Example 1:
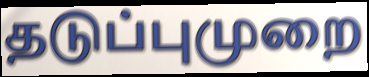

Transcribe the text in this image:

தடுப்புமுறை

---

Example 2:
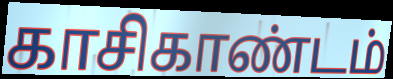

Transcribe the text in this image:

காசிகாண்டம்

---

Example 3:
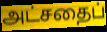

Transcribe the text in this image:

அட்சதைப்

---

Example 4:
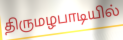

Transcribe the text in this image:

திருமழபாடியில்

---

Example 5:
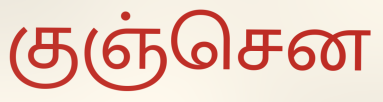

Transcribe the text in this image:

குஞ்சென